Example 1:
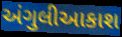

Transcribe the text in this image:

અંગુલીઆકાશ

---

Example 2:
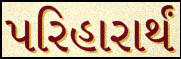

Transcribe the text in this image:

પરિહારાર્થં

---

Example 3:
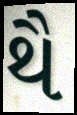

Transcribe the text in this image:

થૈ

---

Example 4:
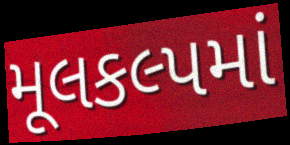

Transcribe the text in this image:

મૂલકલ્પમાં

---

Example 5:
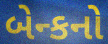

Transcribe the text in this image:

બેન્કનો